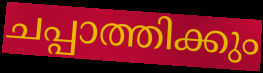
ചപ്പാത്തിക്കും